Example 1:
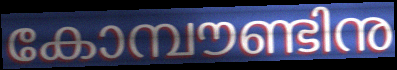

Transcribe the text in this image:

കോമ്പൗണ്ടിനു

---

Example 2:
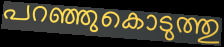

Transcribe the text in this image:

പറഞ്ഞുകൊടുത്തു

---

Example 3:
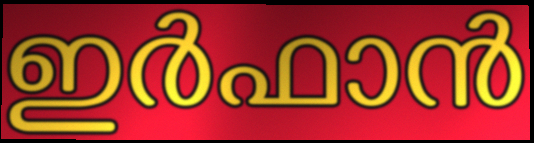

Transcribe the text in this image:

ഇർഫാൻ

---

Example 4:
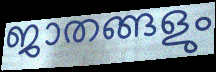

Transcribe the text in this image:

ജാതങ്ങളും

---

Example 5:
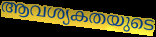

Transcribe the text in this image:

ആവശ്യകതയുടെ